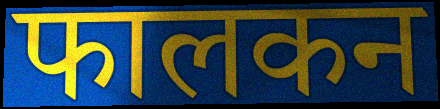
फालकन